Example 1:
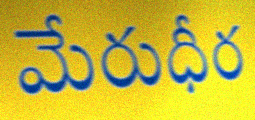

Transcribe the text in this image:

మేరుధీర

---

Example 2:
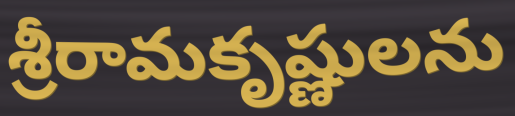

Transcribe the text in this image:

శ్రీరామకృష్ణులను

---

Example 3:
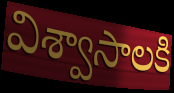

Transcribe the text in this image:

విశ్వాసాలకి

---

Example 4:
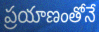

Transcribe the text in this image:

ప్రయాణంతోనే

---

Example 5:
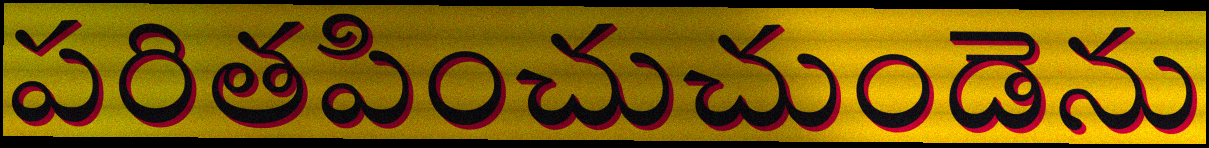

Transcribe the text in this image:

పరితపించుచుండెను